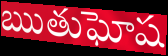
ఋతుఘోష